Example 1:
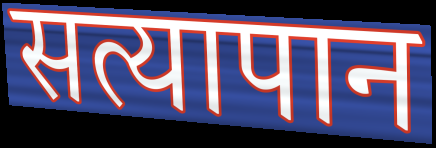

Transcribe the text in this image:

सत्यापान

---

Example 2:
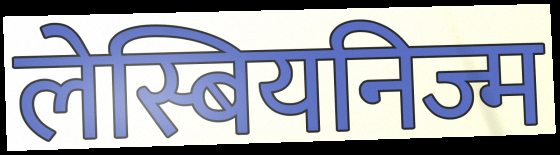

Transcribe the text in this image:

लेस्बियनिज्म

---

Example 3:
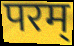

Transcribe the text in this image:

परम्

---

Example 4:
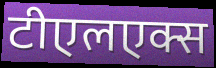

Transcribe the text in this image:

टीएलएक्स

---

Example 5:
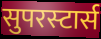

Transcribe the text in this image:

सुपरस्‍टार्स